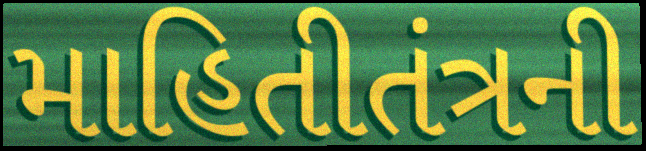
માહિતીતંત્રની